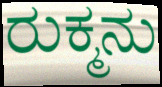
ರುಕ್ಮನು